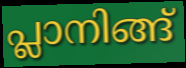
പ്ലാനിങ്ങ്